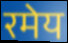
रमेय